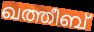
ഖത്തീബ്